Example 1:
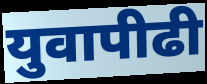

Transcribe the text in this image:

युवापीढी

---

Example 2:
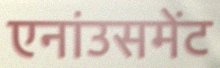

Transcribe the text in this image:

एनांउसमेंट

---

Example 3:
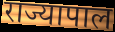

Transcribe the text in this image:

राज्यापाल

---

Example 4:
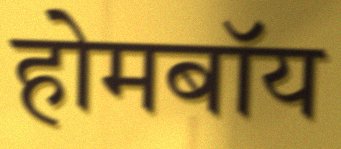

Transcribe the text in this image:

होमबॉय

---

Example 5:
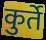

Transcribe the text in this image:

कुर्ते